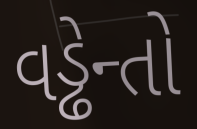
વડ્ઢેન્તો